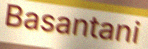
Basantani